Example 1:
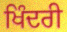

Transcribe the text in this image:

ਖਿੰਦਰੀ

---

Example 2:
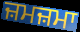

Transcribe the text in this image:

ਜ਼ਮਜ਼ਮਾ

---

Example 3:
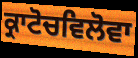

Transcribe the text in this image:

ਕ੍ਰਾਟੋਚਵਿਲੋਵਾ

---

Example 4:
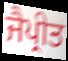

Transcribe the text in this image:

ਜੈਪ੍ਰੀਤ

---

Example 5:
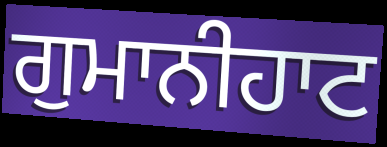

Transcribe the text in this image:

ਗੁਮਾਨੀਹਾਟ